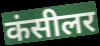
कंसीलर